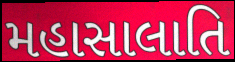
મહાસાલાતિ